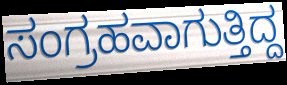
ಸಂಗ್ರಹವಾಗುತ್ತಿದ್ದ